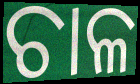
ଚାଳ